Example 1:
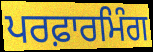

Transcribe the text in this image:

ਪਰਫ਼ਾਰਮਿੰਗ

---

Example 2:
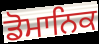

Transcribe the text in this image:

ਡੋਮਾਨਿਕ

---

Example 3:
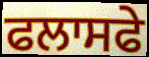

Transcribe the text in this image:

ਫਲਾਸਫੇ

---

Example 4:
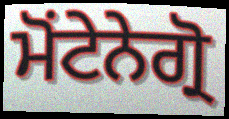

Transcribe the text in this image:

ਮੋਂਟੇਨੇਗ੍ਰੋ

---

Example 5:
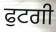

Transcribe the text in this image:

ਫੁਟਗੀ